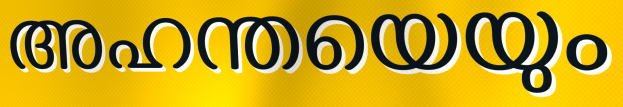
അഹന്തയെയും